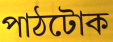
পাঠটোক